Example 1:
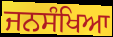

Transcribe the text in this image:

ਜਨਸੰਖਿਆ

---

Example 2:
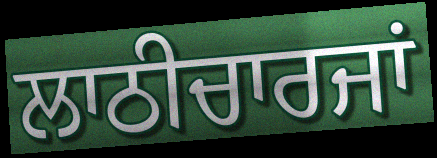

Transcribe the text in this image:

ਲਾਠੀਚਾਰਜਾਂ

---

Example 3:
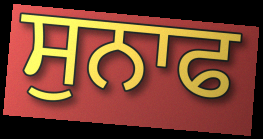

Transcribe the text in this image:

ਸੁਨਾਫ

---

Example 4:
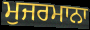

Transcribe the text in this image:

ਮੁਜਰਮਾਨਾ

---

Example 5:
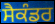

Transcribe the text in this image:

ਸੈਕੰਡਰ